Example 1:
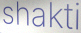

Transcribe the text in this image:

shakti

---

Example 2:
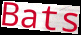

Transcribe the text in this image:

Bats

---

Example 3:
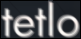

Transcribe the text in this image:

tetlo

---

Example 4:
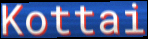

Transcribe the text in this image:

Kottai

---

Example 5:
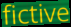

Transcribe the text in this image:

fictive